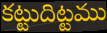
కట్టుదిట్టము